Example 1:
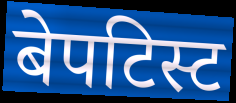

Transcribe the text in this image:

बेपटिस्ट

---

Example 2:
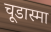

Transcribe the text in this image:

चूडास्मा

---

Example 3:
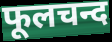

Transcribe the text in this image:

फूलचन्द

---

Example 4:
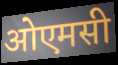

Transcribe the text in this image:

ओएमसी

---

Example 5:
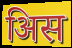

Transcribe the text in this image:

अिस